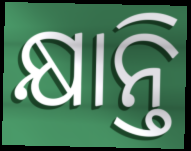
କ୍ଷାନ୍ତି